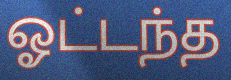
ஓட்டந்த